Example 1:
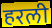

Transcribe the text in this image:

हरली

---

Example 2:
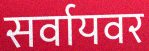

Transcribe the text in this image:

सर्वायवर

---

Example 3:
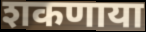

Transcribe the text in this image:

शकणाया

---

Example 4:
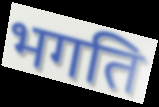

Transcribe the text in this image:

भगति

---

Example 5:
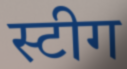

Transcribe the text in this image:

स्टीग